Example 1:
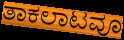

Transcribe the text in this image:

ತಾಕಲಾಟವೂ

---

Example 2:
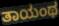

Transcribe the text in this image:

ತಾಯಂಥ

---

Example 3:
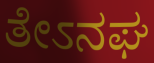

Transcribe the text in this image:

ತೇಽನಘ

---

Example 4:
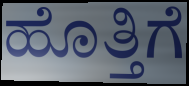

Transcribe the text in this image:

ಹೊತ್ತಿಗೆ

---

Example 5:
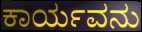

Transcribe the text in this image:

ಕಾರ್ಯವನು